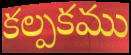
కల్పకము